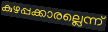
കുഴപ്പക്കാരല്ലെന്ന്